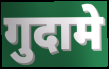
गुदामे